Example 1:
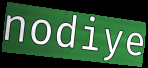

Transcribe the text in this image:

nodiye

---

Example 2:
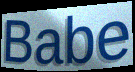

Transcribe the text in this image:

Babe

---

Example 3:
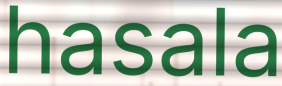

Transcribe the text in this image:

hasala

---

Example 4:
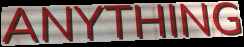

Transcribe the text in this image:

ANYTHING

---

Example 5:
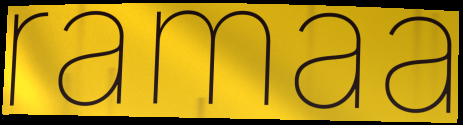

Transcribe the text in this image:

ramaa